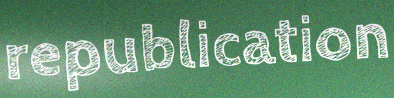
republication